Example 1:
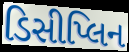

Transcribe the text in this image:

ડિસીપ્લિન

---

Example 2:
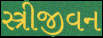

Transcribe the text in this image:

સ્ત્રીજીવન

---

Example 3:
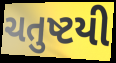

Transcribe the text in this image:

ચતુષ્ટયી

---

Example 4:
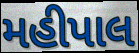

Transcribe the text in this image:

મહીપાલ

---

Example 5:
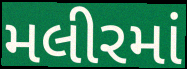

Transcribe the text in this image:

મલીરમાં